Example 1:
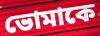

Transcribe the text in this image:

ভোমাকে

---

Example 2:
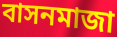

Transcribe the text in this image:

বাসনমাজা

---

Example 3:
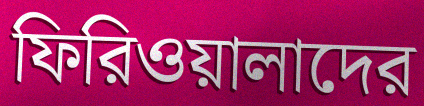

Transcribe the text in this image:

ফিরিওয়ালাদের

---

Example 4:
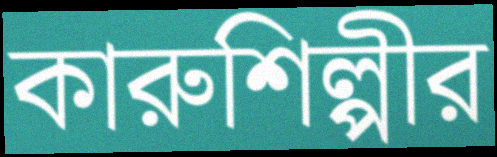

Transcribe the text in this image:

কারুশিল্পীর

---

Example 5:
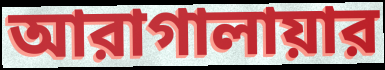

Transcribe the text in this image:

আরাগালায়ার